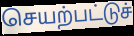
செயற்பட்டுச்